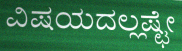
ವಿಷಯದಲ್ಲಷ್ಟೇ